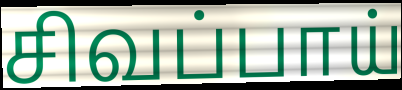
சிவப்பாய்